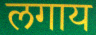
लगाय